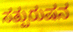
ಸತ್ಪುರುಷನ